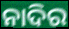
ନାଦିର